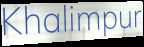
Khalimpur